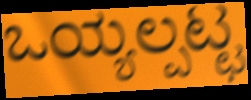
ಒಯ್ಯಲ್ಪಟ್ಟ